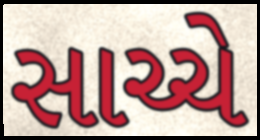
સાચ્ચે